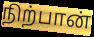
நிற்பான்